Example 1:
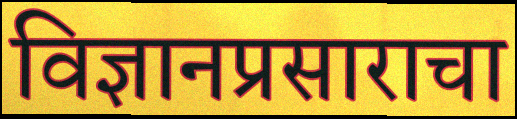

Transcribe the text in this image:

विज्ञानप्रसाराचा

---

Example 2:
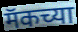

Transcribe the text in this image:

मॅकच्या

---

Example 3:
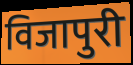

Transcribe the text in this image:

विजापुरी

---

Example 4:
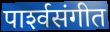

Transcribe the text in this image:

पार्श्‍वसंगीत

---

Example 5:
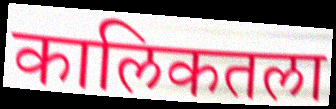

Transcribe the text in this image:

कालिकतला